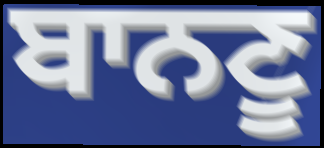
ਬਾਨਣੂ